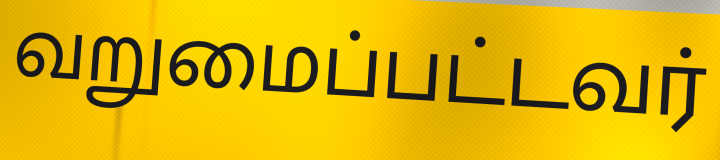
வறுமைப்பட்டவர்